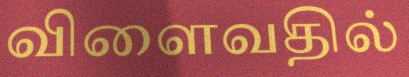
விளைவதில்